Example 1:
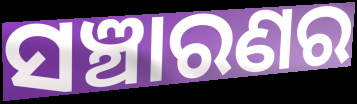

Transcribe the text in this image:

ସଞ୍ଚାରଣର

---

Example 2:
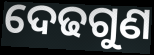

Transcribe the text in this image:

ଦେଢଗୁଣ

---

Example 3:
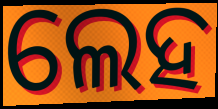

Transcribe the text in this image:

ଲେହ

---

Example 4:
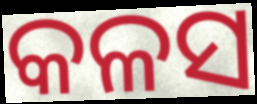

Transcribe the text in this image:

କଳସ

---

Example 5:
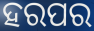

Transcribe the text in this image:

ହରପର